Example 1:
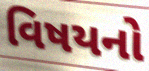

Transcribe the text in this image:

વિષયનો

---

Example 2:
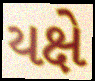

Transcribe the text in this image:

યક્ષે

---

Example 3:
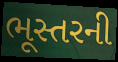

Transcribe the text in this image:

ભૂસ્તરની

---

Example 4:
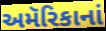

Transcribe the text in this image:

અમૅરિકાનાં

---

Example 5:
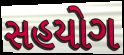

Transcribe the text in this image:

સહયોગ